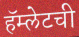
हॅम्लेटची